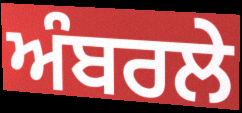
ਅੰਬਰਲੇ